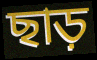
ছাড়